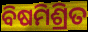
ବିଷମିଶ୍ରିତ